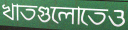
খাতগুলোতেও